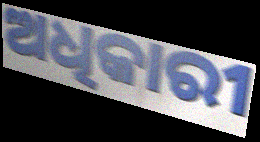
ଅଧିକାରୀ